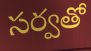
సర్వతో